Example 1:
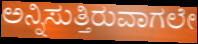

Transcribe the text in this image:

ಅನ್ನಿಸುತ್ತಿರುವಾಗಲೇ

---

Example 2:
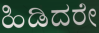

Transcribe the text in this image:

ಹಿಡಿದರೇ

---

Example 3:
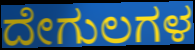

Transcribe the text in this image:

ದೇಗುಲಗಳ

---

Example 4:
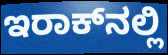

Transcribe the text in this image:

ಇರಾಕ್‍ನಲ್ಲಿ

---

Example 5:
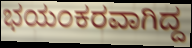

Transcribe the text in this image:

ಭಯಂಕರವಾಗಿದ್ದ